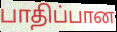
பாதிப்பான